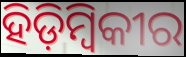
ହିଡ଼ିମ୍ବିକୀର